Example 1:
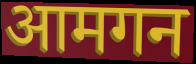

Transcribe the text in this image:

आमगन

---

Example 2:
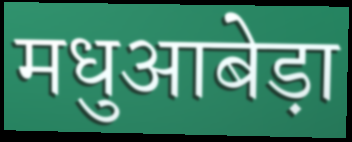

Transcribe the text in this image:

मधुआबेड़ा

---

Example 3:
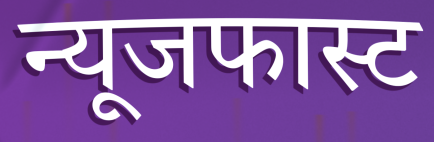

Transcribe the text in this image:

न्यूजफास्ट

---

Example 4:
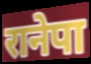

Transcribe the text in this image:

रानेपा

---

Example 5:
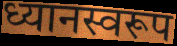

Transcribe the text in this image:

ध्यानस्वरूप